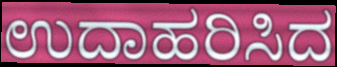
ಉದಾಹರಿಸಿದ